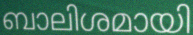
ബാലിശമായി